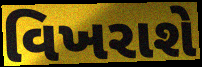
વિખરાશે